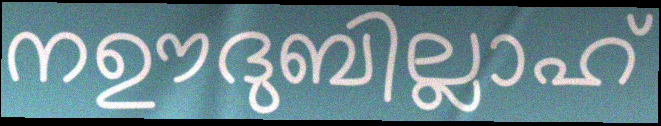
നഊദുബില്ലാഹ്